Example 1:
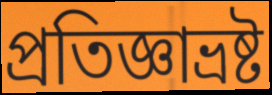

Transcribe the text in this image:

প্রতিজ্ঞাভ্রষ্ট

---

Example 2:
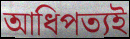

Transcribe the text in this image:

আধিপত্যই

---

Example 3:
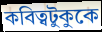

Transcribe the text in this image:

কবিত্বটুকুকে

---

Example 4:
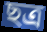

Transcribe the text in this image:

ছত্র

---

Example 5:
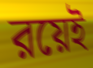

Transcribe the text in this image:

রয়েই